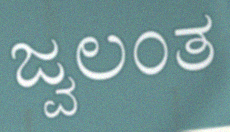
ಜ್ವಲಂತ